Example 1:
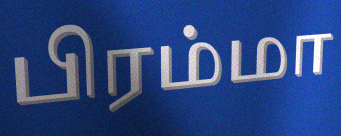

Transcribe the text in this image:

பிரம்மா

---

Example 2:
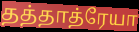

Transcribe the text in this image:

தத்தாத்ரேயா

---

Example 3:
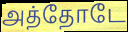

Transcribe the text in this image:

அத்தோடே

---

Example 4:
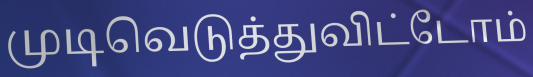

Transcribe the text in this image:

முடிவெடுத்துவிட்டோம்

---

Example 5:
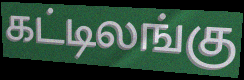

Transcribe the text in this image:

கட்டிலங்கு